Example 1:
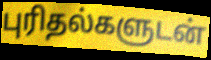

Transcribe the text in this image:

புரிதல்களுடன்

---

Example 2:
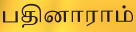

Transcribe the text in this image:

பதினாராம்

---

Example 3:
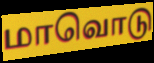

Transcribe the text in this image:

மாவொடு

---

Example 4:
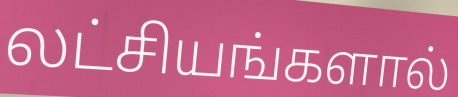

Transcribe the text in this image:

லட்சியங்களால்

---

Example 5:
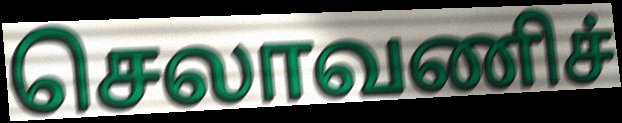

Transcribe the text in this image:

செலாவணிச்